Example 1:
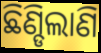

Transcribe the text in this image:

ଛିଣ୍ଡିଲାଣି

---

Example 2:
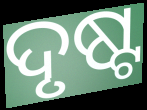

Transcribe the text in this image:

ଦୃଷ୍ଟ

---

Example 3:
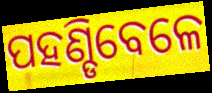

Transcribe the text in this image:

ପହଣ୍ଡିବେଳେ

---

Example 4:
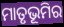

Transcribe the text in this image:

ମାତୃଭୂମିର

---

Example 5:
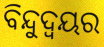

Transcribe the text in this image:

ବିନ୍ଦୁଦ୍ବୟର